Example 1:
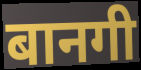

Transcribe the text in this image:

बानगी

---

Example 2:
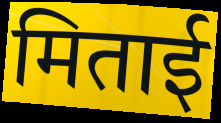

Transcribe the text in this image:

मिताई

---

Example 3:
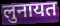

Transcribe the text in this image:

लुनायत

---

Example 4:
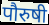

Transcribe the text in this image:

पौरुषी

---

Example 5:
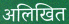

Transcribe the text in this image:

अलिखित